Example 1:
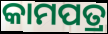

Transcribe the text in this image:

କାମପତ୍ର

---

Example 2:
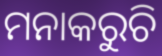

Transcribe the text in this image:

ମନାକରୁଚି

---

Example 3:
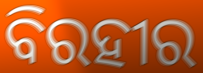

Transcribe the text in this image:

ବିରହୀର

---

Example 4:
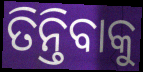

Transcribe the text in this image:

ତିନ୍ତିବାକୁ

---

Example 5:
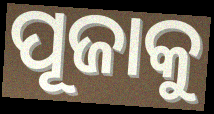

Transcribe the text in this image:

ପୂଜାକୁ